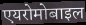
एयरोमोबाइल